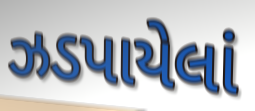
ઝડપાયેલાં